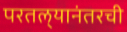
परतल्यानंतरची